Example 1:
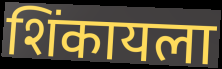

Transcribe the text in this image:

शिंकायला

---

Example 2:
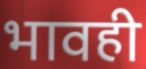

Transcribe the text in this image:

भावही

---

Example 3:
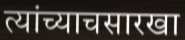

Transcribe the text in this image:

त्यांच्याचसारखा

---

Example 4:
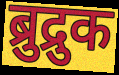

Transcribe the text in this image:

ब्रुद्रुक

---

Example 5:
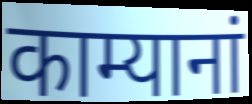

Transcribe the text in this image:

काम्यानां